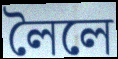
লৈলে